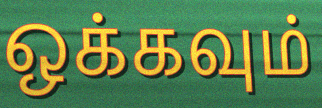
ஒக்கவும்